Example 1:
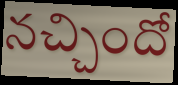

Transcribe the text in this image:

నచ్చిందో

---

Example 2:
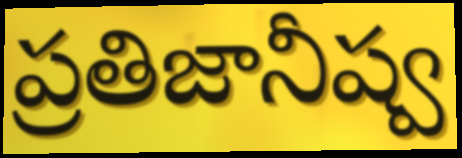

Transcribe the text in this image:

ప్రతిజానీష్వ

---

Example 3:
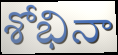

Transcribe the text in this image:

శోభినా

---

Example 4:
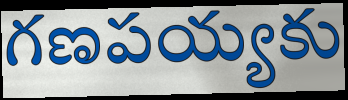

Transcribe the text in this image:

గణపయ్యకు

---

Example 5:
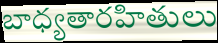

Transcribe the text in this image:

బాధ్యతారహితులు